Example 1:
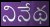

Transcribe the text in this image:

నినేథ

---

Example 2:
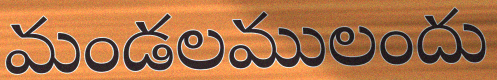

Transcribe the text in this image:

మండలములందు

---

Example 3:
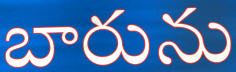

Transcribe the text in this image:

బారును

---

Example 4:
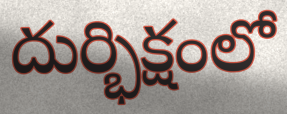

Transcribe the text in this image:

దుర్భిక్షంలో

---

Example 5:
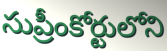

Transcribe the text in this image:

సుప్రీంకోర్టులోని